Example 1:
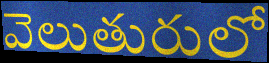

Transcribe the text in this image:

వెలుతురులో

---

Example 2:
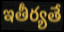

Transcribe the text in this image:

ఇతీర్యతే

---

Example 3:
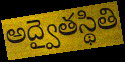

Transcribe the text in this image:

అద్వైతస్థితి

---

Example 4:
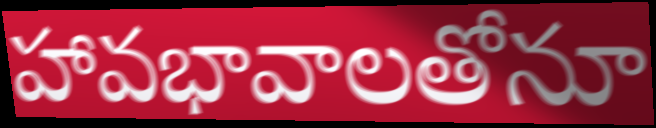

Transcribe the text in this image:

హావభావాలతోనూ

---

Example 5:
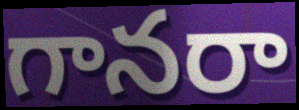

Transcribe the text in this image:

గానరా